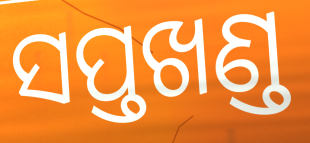
ସପ୍ତଖଣ୍ଡ